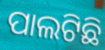
ପାଲଟିଛି